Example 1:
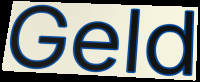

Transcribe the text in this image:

Geld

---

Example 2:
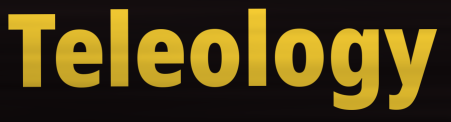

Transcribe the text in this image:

Teleology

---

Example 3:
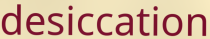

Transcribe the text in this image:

desiccation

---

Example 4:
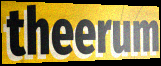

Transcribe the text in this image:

theerum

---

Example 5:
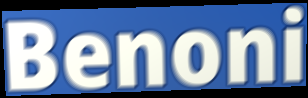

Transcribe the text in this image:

Benoni